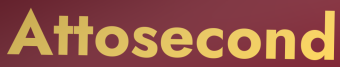
Attosecond